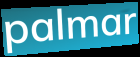
palmar